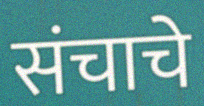
संचाचे